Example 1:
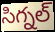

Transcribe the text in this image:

సిగ్నల్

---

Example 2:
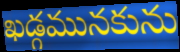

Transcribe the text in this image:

ఖడ్గమునకును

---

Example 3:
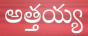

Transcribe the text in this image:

అత్తయ్య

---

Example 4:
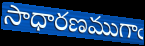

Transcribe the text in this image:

సాధారణముగాఁ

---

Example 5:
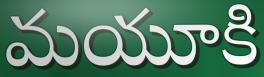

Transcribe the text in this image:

మయూకి